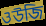
ওউজি